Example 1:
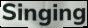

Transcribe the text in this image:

Singing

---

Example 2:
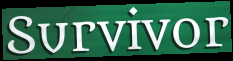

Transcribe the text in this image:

Survivor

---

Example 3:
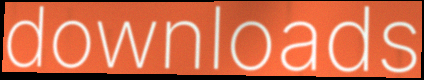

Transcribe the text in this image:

downloads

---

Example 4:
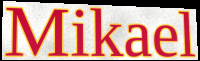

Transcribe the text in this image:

Mikael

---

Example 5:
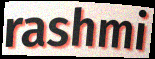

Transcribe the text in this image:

rashmi